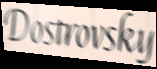
Dostrovsky